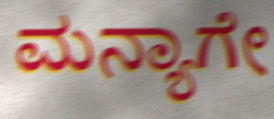
ಮನ್ಯಾಗೇ